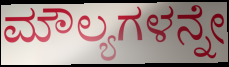
ಮೌಲ್ಯಗಳನ್ನೇ